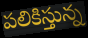
పలికిస్తున్న